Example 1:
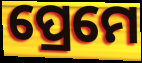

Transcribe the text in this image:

ପ୍ରେମେ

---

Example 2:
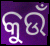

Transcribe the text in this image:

କୁଉଁ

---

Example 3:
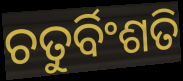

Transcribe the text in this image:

ଚତୁର୍ବିଂଶତି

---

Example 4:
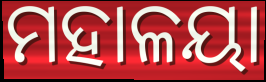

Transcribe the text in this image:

ମହାଳୟା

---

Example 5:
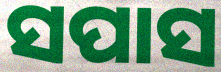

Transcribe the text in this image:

ସପାସ